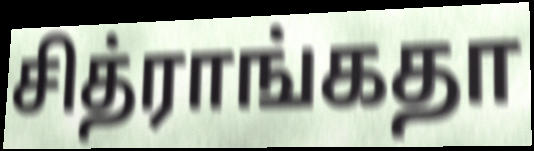
சித்ராங்கதா